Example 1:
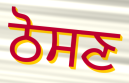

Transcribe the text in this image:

ਠੋਸਣ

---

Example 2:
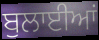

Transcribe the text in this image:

ਬੁਲਾਈਆਂ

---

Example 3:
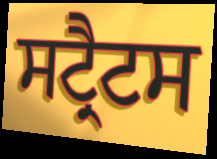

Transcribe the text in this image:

ਸਟ੍ਰੈਟਸ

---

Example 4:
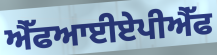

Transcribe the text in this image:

ਐੱਫਆਈਏਪੀਐੱਫ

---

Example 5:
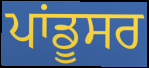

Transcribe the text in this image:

ਪਾਂਡੂਸਰ